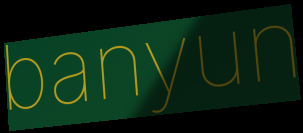
banyun